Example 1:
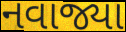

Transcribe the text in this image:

નવાજ્યા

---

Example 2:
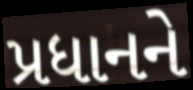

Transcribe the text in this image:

પ્રધાનને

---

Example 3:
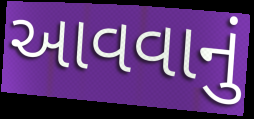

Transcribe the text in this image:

આવવાનું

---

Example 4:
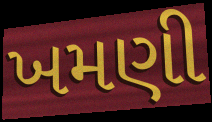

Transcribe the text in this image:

ખમણી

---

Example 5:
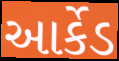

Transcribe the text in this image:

આર્કેડ